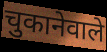
चुकानेवाले